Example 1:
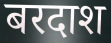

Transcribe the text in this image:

बरदाश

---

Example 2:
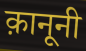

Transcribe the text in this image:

क़ानूनी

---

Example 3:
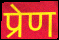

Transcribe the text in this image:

प्रेण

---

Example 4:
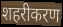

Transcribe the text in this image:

शहरीकरण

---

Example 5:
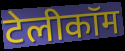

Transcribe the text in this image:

टेलीकॉम